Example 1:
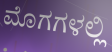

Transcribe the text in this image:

ಮೊಗಗಳಲ್ಲಿ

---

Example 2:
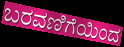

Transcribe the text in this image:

ಬರವಣಿಗೆಯಿಂದ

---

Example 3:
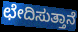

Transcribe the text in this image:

ಛೇದಿಸುತ್ತಾನೆ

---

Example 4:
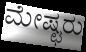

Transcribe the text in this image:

ಮೇಷ್ಟರು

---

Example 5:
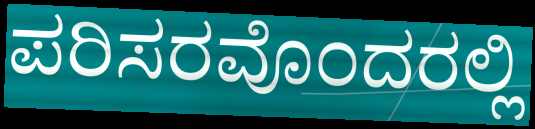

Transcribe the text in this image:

ಪರಿಸರವೊಂದರಲ್ಲಿ